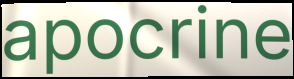
apocrine